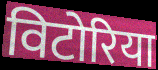
विटोरिया